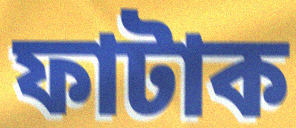
ফাটাক